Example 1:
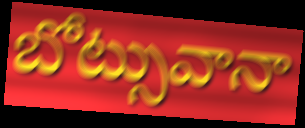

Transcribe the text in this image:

బోట్సువానా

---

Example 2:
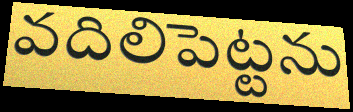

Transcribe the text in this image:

వదిలిపెట్టను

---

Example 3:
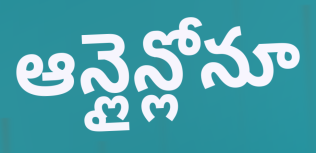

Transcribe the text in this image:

ఆన్లైన్లోనూ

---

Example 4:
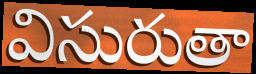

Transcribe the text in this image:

విసురుతా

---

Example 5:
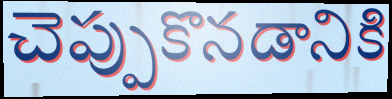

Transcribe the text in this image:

చెప్పుకొనడానికి